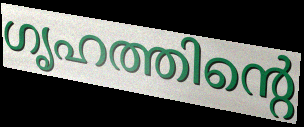
ഗൃഹത്തിന്റെ